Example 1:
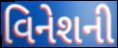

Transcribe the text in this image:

વિનેશની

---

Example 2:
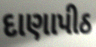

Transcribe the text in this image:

દાણાપીઠ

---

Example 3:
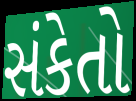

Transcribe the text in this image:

સંકેતો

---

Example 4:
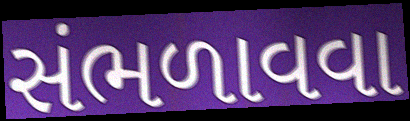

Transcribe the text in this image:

સંભળાવવા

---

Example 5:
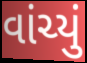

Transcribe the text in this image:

વાંચ્યું